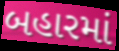
બહારમાં